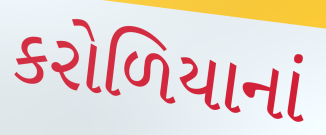
કરોળિયાનાં